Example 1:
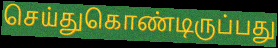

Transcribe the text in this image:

செய்துகொண்டிருப்பது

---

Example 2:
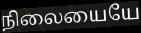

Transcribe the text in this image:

நிலையையே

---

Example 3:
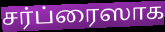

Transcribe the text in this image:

சர்ப்ரைஸாக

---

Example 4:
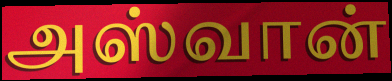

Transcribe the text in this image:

அஸ்வான்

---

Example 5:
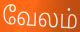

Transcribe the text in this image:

வேலம்